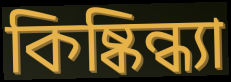
কিষ্কিন্ধ্যা